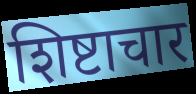
शिष्टाचार